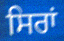
ਸਿਰਾਂ